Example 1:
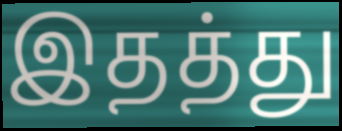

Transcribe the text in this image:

இதத்து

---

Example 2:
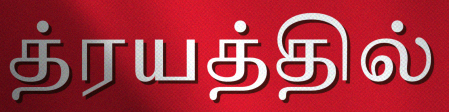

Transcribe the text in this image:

த்ரயத்தில்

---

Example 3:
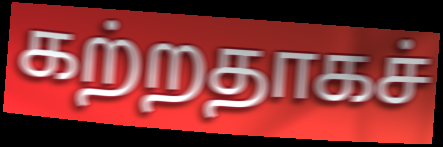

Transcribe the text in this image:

கற்றதாகச்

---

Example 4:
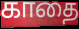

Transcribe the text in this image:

காதை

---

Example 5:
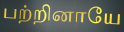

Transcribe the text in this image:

பற்றினாயே